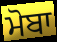
ਮੋਬਾ